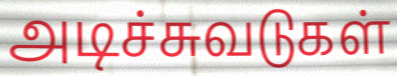
அடிச்சுவடுகள்